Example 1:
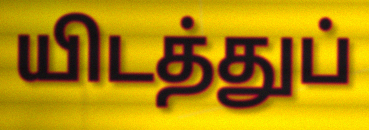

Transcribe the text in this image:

யிடத்துப்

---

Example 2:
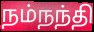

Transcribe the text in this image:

நம்நந்தி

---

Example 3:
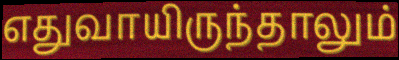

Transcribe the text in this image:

எதுவாயிருந்தாலும்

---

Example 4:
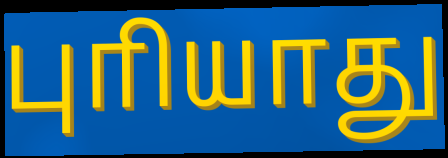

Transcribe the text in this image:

புரியாது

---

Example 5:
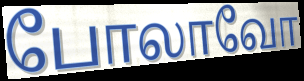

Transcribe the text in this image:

போலாவோ